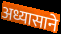
अध्यासाने